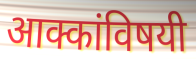
आक्कांविषयी